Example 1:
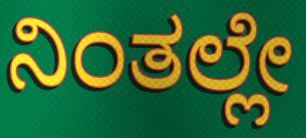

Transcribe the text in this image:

ನಿಂತಲ್ಲೇ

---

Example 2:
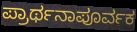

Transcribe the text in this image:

ಪ್ರಾರ್ಥನಾಪೂರ್ವಕ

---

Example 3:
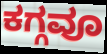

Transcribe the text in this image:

ಕಗ್ಗವೂ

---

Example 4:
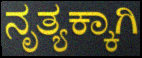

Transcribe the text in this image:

ನೃತ್ಯಕ್ಕಾಗಿ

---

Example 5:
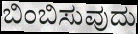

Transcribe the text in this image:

ಬಿಂಬಿಸುವುದು